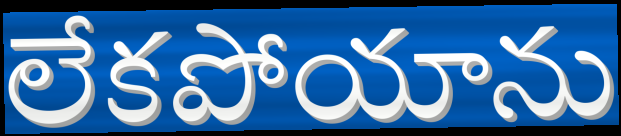
లేకపోయాను